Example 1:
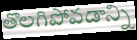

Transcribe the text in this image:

తొలగిపోవడాన్ని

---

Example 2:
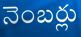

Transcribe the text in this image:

నెంబర్లు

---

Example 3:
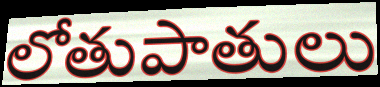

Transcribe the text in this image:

లోతుపాతులు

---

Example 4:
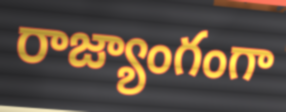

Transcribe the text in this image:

రాజ్యాంగంగా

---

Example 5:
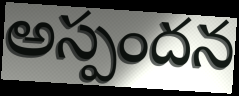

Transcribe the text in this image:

అస్పందన